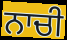
ਨਾਚੀ